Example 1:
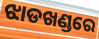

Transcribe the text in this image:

ଝାଡଖଣ୍ଡରେ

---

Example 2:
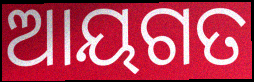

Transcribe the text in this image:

ଆୟଗତ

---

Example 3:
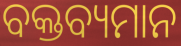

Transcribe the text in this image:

ବକ୍ତବ୍ୟମାନ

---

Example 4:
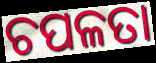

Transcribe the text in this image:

ଚପଳତା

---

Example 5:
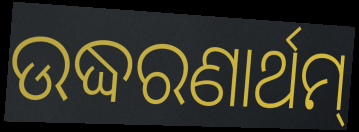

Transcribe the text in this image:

ଉଦ୍ଧରଣାର୍ଥମ୍